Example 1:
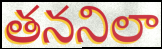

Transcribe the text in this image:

తననిలా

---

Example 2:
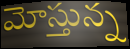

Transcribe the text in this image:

మోస్తున్న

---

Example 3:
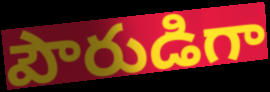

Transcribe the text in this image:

పౌరుడిగా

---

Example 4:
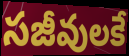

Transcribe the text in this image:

సజీవులకే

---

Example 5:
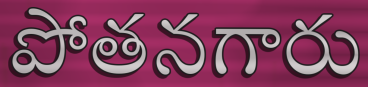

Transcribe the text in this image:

పోతనగారు